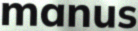
manus